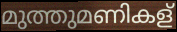
മുത്തുമണികള്